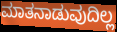
ಮಾತನಾಡುವುದಿಲ್ಲ